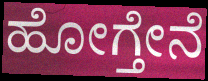
ಹೋಗ್ತೇನೆ